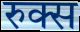
रुक्स